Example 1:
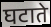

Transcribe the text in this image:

घटाते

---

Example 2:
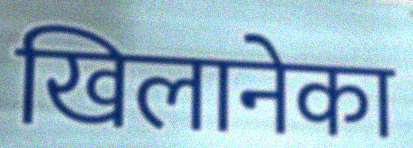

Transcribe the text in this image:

खिलानेका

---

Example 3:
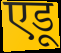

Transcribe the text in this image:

एडू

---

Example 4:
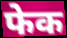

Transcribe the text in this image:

फेक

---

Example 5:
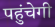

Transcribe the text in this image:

पहुंचेगी